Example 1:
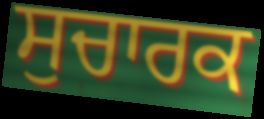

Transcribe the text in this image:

ਸੁਚਾਰਕ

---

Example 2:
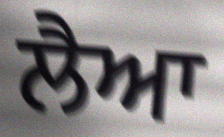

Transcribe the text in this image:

ਲੈਆ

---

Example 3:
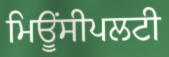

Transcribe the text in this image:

ਮਿਊਂਸੀਪਲਟੀ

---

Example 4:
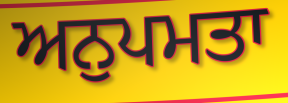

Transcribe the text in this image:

ਅਨੁਪਮਤਾ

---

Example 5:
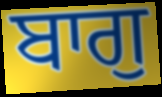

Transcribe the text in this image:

ਬਾਗੁ